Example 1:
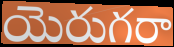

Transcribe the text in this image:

యెరుగరా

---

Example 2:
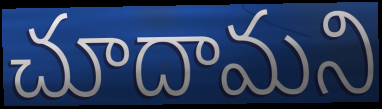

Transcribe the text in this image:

చూదామని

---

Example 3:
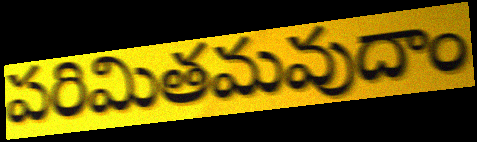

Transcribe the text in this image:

పరిమితమవుదాం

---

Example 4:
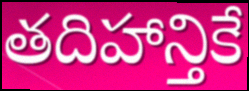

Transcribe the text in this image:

తదిహాన్తికే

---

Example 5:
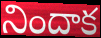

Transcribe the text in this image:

నిందాక